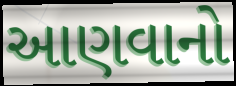
આણવાનો